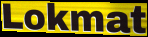
Lokmat